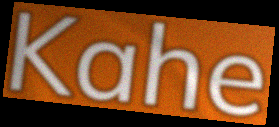
Kahe